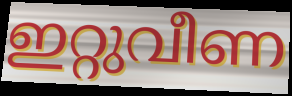
ഇറ്റുവീണ